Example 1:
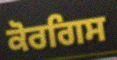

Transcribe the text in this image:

ਕੋਰਗਿਸ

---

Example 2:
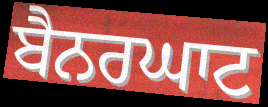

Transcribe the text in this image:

ਬੈਨਰਘਾਟ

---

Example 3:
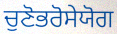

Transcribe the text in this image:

ਚੁਣੋਭਰੋਸੇਯੋਗ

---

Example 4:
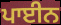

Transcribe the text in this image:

ਪਾਈਨ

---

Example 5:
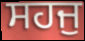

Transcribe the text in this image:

ਸਹਜੁ